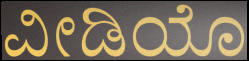
ವೀಡಿಯೊ